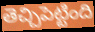
తెచ్చిపెట్టింది